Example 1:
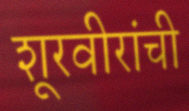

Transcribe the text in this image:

शूरवीरांची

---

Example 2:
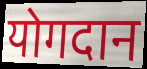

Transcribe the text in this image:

योगदान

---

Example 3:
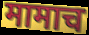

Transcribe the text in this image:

मामाच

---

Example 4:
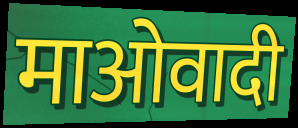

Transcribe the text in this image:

माओवादी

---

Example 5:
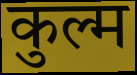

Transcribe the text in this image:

कुल्म